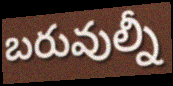
బరువుల్నీ